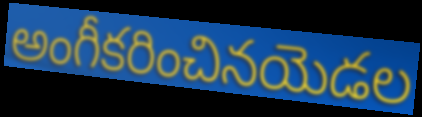
అంగీకరించినయెడల